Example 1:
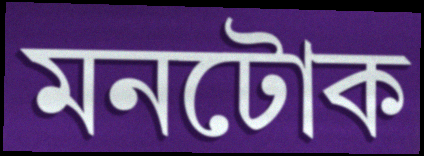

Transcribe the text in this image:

মনটোক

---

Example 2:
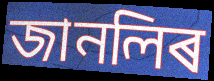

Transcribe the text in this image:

জানলিৰ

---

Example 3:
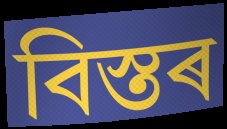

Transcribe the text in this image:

বিস্তৰ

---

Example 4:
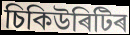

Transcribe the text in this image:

চিকিউৰিটিৰ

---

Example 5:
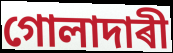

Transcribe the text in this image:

গোলাদাৰী